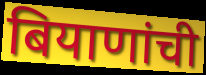
बियाणांची